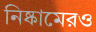
নিষ্কামেরও